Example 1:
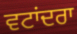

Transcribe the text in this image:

ਵਟਾਂਦਰਾ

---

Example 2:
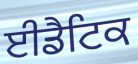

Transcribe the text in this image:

ਈਡੈਟਿਕ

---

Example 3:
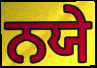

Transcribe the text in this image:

ਨਯੇ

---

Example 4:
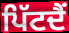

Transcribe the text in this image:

ਪਿੱਟਦੈਂ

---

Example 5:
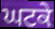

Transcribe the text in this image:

ਘਟਕੇ